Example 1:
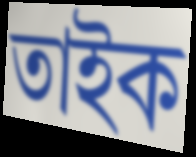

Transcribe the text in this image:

তাইক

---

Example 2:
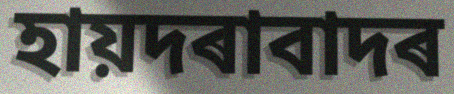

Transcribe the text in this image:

হায়দৰাবাদৰ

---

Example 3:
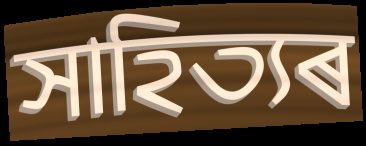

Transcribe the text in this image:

সাহিত্যৰ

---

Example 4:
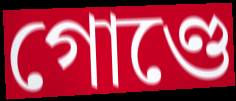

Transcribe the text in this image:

গোণ্ডে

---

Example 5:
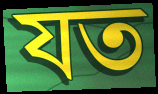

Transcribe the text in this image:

যত